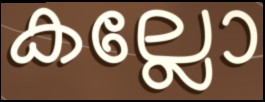
കല്ലോ